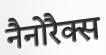
नैनोरैक्स